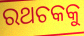
ରଥଚକକୁ